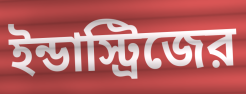
ইন্ডাস্ট্রিজের